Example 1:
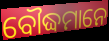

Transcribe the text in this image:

ବୌଦ୍ଧମାନେ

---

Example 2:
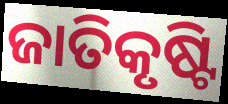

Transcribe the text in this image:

ଜାତିକୃଷ୍ଟି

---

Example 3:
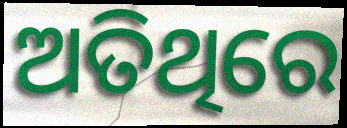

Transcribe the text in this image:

ଅତିଥିରେ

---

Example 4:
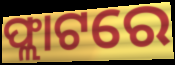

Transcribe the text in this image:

ଫ୍ଲାଟରେ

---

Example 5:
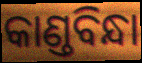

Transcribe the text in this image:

କାଣ୍ଡବିନ୍ଧା